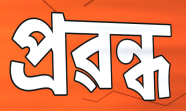
প্ৰৱন্ধ